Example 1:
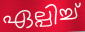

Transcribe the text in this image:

ഏല്പിച്ച്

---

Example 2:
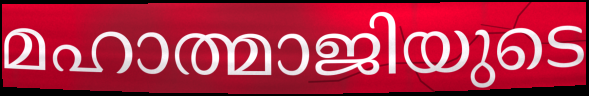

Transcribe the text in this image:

മഹാത്മാജിയുടെ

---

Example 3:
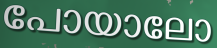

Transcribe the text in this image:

പോയാലോ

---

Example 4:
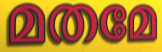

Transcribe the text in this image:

മതമേ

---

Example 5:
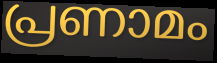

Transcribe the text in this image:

പ്രണാമം